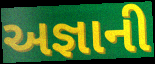
અજ્ઞાની